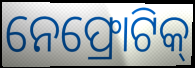
ନେଫ୍ରୋଟିକ୍